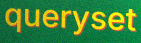
queryset